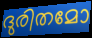
ദുരിതമോ